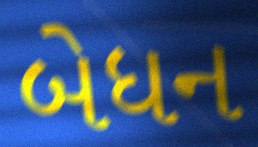
બેધન